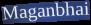
Maganbhai